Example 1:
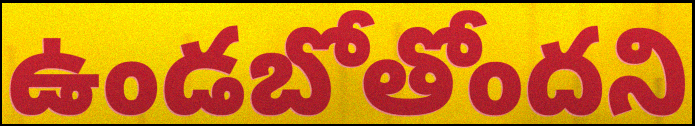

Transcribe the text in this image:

ఉండబోతోందని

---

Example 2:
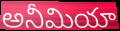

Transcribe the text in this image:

అనీమియా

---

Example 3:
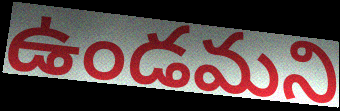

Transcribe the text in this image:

ఉండమని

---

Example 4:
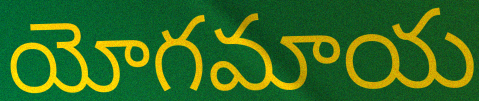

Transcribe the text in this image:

యోగమాయ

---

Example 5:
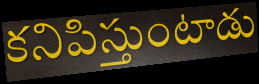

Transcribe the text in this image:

కనిపిస్తుంటాడు